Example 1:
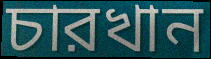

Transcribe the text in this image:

চারখান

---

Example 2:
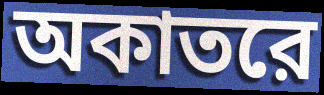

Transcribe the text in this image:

অকাতরে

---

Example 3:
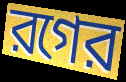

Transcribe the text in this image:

রগের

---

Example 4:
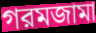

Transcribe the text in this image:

গরমজামা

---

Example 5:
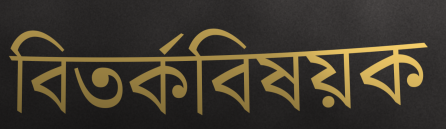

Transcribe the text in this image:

বিতর্কবিষয়ক